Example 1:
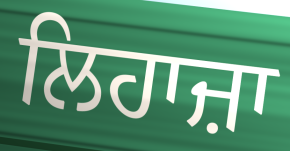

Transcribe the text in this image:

ਲਿਹਾਜ਼ਾ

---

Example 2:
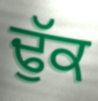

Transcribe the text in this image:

ਢੁੱਕ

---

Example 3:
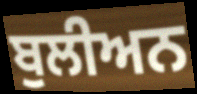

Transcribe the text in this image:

ਬੁਲੀਅਨ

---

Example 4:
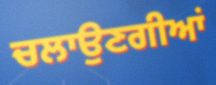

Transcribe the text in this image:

ਚਲਾਉਣਗੀਆਂ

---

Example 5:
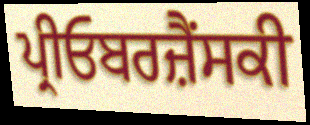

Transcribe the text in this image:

ਪ੍ਰੀਓਬਰਜ਼ੈਂਸਕੀ